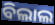
ବିଲାଲ